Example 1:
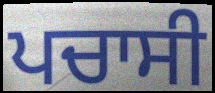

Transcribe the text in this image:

ਪਚਾਸੀ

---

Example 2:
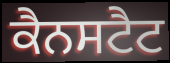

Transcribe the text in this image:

ਕੈਨਸਟੈਟ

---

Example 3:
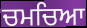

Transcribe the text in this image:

ਚਮਚਿਆ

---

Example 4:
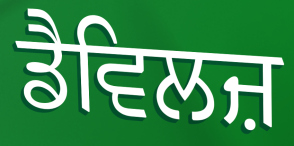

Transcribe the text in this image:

ਡੈਵਿਲਜ਼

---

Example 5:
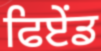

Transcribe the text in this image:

ਫਿਏਂਡ